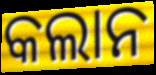
କଲାନ